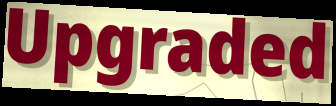
Upgraded